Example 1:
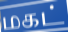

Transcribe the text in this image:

மகட்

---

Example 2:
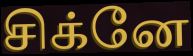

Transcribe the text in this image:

சிக்னே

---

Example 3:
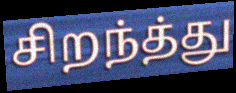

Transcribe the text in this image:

சிறந்த்து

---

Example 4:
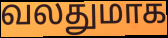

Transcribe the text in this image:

வலதுமாக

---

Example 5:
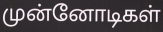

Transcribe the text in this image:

முன்னோடிகள்